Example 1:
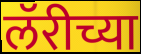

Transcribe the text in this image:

लॅरीच्या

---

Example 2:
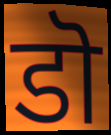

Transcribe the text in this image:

डॊ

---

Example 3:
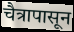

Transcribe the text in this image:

चैत्रापासून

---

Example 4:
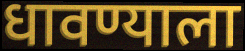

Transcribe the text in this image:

धावण्याला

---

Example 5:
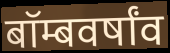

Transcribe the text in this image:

बॉम्बवर्षांव